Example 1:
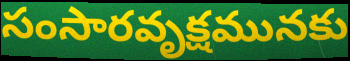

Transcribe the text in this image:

సంసారవృక్షమునకు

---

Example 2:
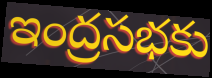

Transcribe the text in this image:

ఇంద్రసభకు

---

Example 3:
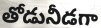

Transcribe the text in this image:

తోడునీడగా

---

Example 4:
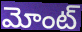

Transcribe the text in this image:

మోంట్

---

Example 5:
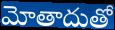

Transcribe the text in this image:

మోతాదుతో